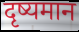
दृष्यमान